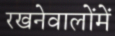
रखनेवालोंमें